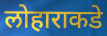
लोहाराकडे